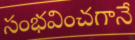
సంభవించగానే